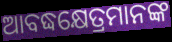
ଆବଦ୍ଧକ୍ଷେତ୍ରମାନଙ୍କ